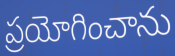
ప్రయోగించాను